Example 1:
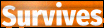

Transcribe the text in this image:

Survives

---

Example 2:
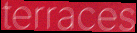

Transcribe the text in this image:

terraces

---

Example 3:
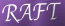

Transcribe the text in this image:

RAFT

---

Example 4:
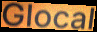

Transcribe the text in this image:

Glocal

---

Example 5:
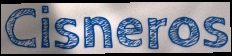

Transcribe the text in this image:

Cisneros